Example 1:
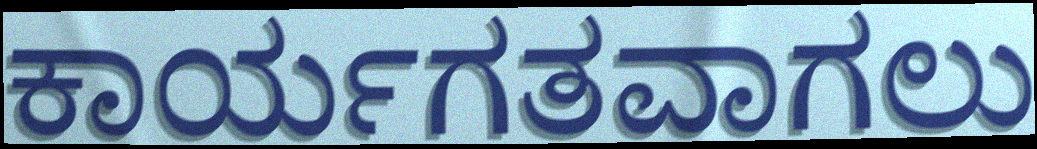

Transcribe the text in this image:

ಕಾರ್ಯಗತವಾಗಲು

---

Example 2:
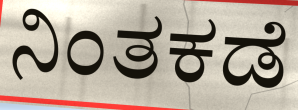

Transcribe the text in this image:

ನಿಂತಕಡೆ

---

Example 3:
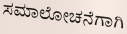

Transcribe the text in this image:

ಸಮಾಲೋಚನೆಗಾಗಿ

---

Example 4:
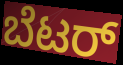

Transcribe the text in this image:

ಬೆಟರ್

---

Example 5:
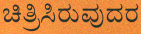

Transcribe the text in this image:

ಚಿತ್ರಿಸಿರುವುದರ